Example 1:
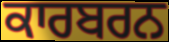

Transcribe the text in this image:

ਕਾਰਬਰਨ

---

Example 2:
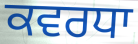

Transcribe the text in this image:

ਕਵਰਧਾ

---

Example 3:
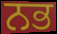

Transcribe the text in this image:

ਨਭ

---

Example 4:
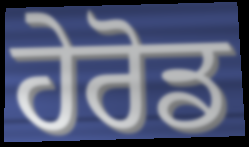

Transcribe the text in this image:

ਹੇਰੋਡ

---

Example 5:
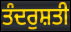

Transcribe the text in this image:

ਤੰਦਰੁਸ਼ਤੀ